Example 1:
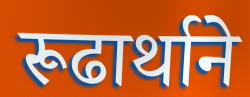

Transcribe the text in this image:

रूढार्थाने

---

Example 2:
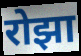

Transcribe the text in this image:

रोझा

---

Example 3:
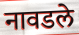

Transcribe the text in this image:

नावडले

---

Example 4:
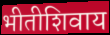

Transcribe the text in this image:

भीतीशिवाय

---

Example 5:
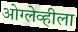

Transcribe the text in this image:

ओग्लेव्हीला